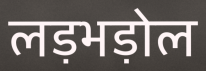
लड़भड़ोल